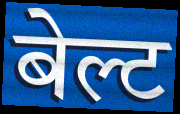
बेल्ट